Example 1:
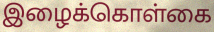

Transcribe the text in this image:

இழைக்கொள்கை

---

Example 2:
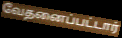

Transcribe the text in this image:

வேதனைப்பட்டார்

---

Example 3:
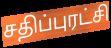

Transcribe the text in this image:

சதிப்புரட்சி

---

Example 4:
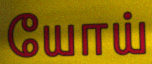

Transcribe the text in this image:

யோய்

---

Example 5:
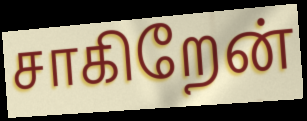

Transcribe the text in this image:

சாகிறேன்